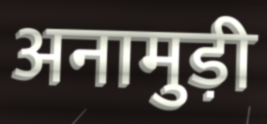
अनामुड़ी